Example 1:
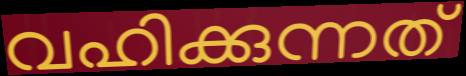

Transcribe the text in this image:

വഹിക്കുന്നത്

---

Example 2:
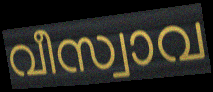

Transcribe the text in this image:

വീസ്വാവ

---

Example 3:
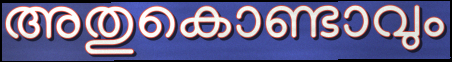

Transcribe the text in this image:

അതുകൊണ്ടാവും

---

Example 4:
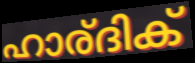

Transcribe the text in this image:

ഹാര്ദിക്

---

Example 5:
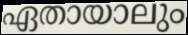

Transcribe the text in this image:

ഏതായാലും